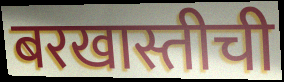
बरखास्तीची